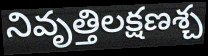
నివృత్తిలక్షణశ్చ